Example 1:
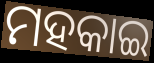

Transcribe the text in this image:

ମହକାଇ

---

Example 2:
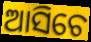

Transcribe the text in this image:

ଆସିଚେ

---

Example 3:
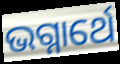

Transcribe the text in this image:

ଭଗ୍ନାର୍ଥେ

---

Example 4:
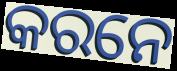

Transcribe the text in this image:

କରନେ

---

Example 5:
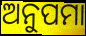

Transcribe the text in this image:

ଅନୁପମା